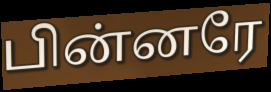
பின்னரே